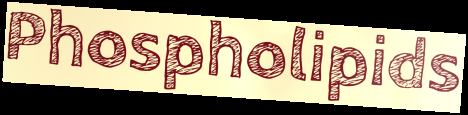
Phospholipids